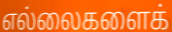
எல்லைகளைக்